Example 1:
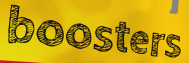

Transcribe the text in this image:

boosters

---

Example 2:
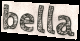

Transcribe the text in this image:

bella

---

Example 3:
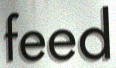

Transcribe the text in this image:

feed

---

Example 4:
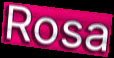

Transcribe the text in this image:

Rosa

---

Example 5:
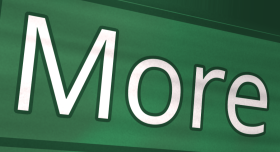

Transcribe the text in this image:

More